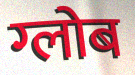
ग्‍लोब